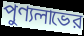
পুণ্যলাভের